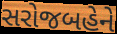
સરોજબહેને